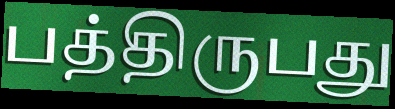
பத்திருபது